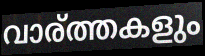
വാര്ത്തകളും